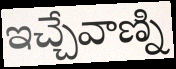
ఇచ్చేవాణ్ని